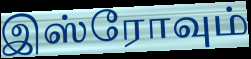
இஸ்ரோவும்